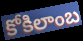
కోకిలాంబ